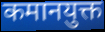
कमानयुक्त